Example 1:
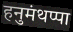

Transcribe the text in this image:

हनुमंथप्पा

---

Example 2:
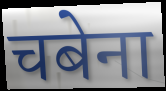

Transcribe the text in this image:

चबेना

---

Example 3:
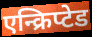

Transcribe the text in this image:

एन्क्रिप्टेड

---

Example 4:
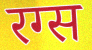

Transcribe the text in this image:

रग्स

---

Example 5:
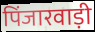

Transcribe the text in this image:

पिंजारवाड़ी